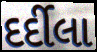
દર્દીલા